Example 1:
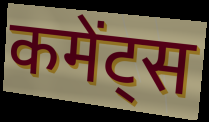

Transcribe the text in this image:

कमेंट्स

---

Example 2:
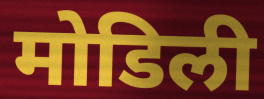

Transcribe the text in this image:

मोडिली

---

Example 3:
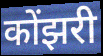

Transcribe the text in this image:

कोंझरी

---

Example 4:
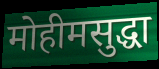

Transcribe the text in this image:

मोहीमसुद्धा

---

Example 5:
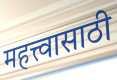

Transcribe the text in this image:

महत्त्वासाठी